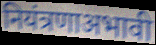
नियंत्रणाअभावी